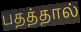
பதத்தால்